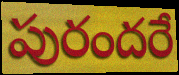
పురందరే